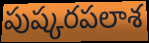
పుష్కరపలాశ